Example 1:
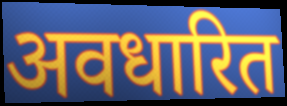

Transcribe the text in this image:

अवधारित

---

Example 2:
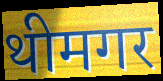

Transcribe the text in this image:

थीमगर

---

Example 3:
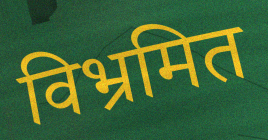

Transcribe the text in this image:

विभ्रमित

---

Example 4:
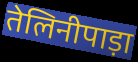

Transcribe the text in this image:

तेलिनीपाड़ा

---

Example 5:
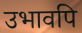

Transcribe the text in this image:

उभावपि